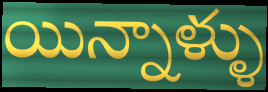
యిన్నాళ్ళు